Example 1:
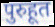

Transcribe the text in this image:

पुरुहूत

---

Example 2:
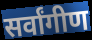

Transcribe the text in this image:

सर्वांगीण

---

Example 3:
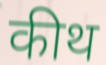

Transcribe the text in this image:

कीथ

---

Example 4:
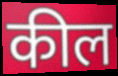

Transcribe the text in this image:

कील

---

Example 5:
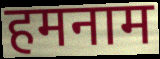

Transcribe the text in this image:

हमनाम